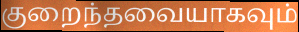
குறைந்தவையாகவும்